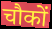
चौकों